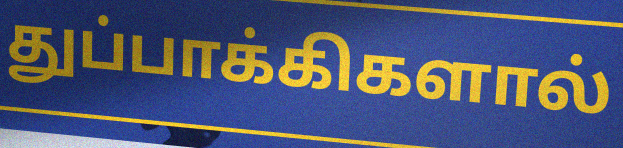
துப்பாக்கிகளால்